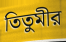
তিতুমীর